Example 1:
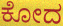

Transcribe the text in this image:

ಕೋದ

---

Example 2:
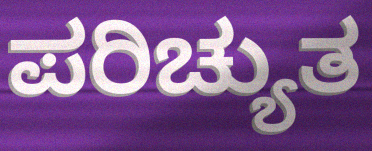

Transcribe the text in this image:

ಪರಿಚ್ಯುತ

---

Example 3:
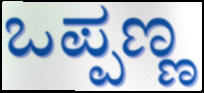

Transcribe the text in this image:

ಒಪ್ಪಣ್ಣ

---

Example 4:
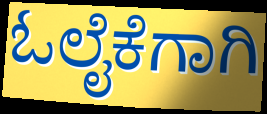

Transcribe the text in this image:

ಓಲೈಕೆಗಾಗಿ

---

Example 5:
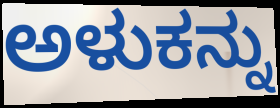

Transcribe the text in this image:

ಅಳುಕನ್ನು